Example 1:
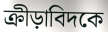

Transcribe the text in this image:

ক্রীড়াবিদকে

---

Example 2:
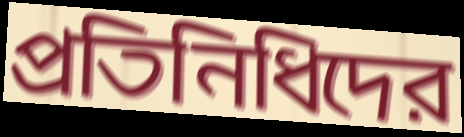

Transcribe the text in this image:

প্রতিনিধিদের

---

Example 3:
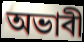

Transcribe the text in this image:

অভাবী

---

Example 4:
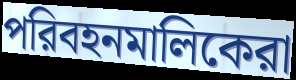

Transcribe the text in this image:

পরিবহনমালিকেরা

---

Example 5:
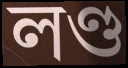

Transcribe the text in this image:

লণ্ড